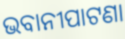
ଭବାନୀପାଟଣା